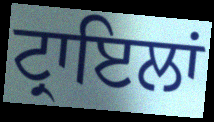
ਟ੍ਰਾਇਲਾਂ